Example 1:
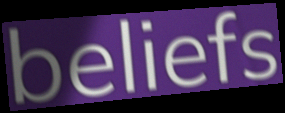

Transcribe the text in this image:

beliefs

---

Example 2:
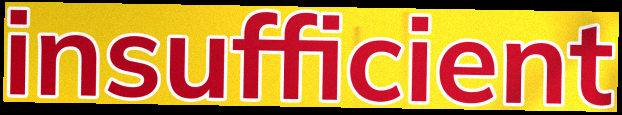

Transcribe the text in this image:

insufficient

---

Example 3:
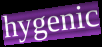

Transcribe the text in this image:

hygenic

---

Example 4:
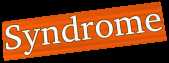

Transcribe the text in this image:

Syndrome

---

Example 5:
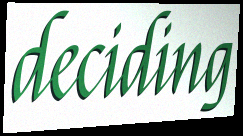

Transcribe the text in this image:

deciding